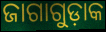
ଜାଗାଗୁଡ଼ାକ